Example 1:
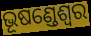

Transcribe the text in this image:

ଭୂଷଣ୍ଡେଶ୍ଵର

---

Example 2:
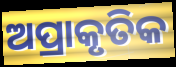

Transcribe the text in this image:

ଅପ୍ରାକୃତିକ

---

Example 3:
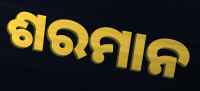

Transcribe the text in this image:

ଶରମାନ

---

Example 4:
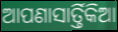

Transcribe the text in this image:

ଆପଣାସାର୍ତ୍ତିକିଆ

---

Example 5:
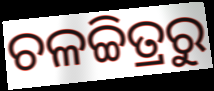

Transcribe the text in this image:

ଚଳଚ୍ଚିତ୍ରରୁ